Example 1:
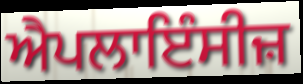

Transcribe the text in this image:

ਐਪਲਾਇੰਸੀਜ਼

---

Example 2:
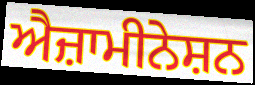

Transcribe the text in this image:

ਐਜ਼ਾਮੀਨੇਸ਼ਨ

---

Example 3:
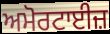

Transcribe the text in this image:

ਅਮੋਰਟਾਈਜ਼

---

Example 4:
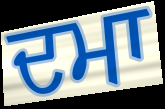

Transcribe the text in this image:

ਦਮਾ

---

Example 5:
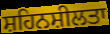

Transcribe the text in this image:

ਸ਼ਹਿਨਸ਼ੀਲਤਾ